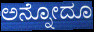
ಅನ್ನೋದೂ